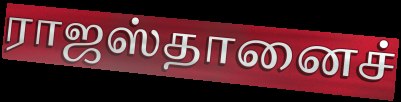
ராஜஸ்தானைச்